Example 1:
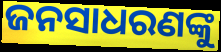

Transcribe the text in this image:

ଜନସାଧରଣଙ୍କୁ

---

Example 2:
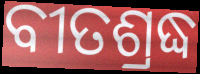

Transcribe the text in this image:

ବୀତଶ୍ରଦ୍ଧ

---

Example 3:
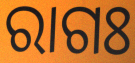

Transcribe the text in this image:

ରାଗଃ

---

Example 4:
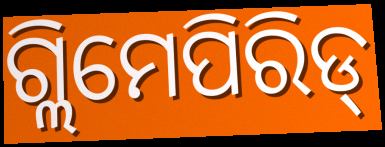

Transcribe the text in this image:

ଗ୍ଲିମେପିରିଡ୍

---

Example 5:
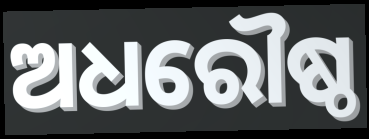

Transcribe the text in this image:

ଅଧରୌଷ୍ଠ